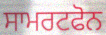
ਸਾਮਰਟਫੋਨ